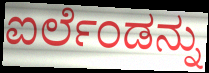
ಐರ್ಲೆಂಡನ್ನು